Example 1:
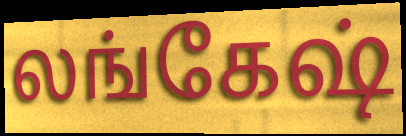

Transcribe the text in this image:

லங்கேஷ்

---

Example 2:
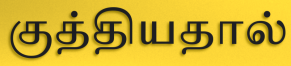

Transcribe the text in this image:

குத்தியதால்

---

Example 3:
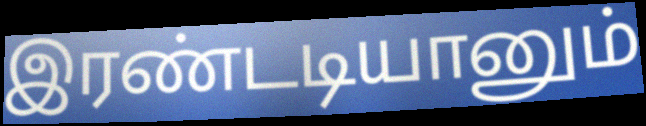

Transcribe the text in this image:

இரண்டடியானும்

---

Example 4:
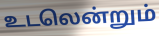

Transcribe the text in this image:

உடலென்றும்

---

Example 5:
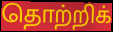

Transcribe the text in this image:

தொற்றிக்